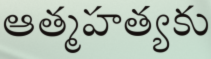
ఆత్మహత్యకు